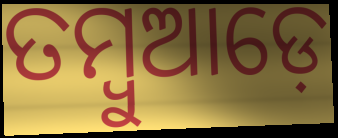
ତମ୍ବୁଆଡ଼େ